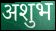
अशुभ